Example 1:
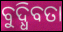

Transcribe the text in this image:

ବୁଦ୍ଧିବତା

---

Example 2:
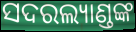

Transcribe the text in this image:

ସଦରଲ୍ୟାଣ୍ଡଙ୍କ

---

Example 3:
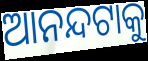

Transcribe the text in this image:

ଆନନ୍ଦଟାକୁ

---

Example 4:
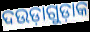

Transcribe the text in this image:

ଦଉଡ଼ାଗୁଡ଼ାକ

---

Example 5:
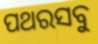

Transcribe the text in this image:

ପଥରସବୁ